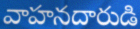
వాహనదారుడి